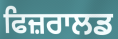
ਫਿਜ਼ਰਾਲਡ